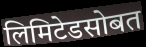
लिमिटेडसोबत